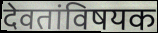
देवतांविषयक